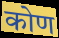
कोण